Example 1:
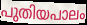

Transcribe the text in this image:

പുതിയപാലം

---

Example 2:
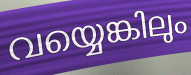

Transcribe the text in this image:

വയ്യെങ്കിലും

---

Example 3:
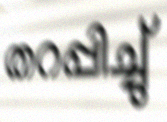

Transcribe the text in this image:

തറപ്പിച്ചു്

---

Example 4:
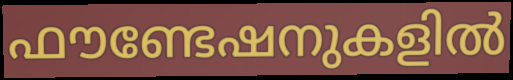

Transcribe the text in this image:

ഫൗണ്ടേഷനുകളിൽ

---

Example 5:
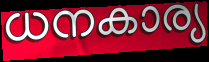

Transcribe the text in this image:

ധനകാര്യ